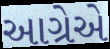
આગ્રેએ